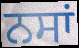
ਨਸਾਂ